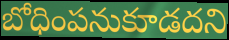
బోధింపనుకూడదని